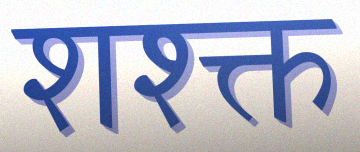
शश्क्त